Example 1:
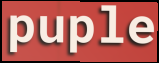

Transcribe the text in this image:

puple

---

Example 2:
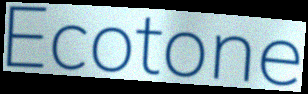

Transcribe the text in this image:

Ecotone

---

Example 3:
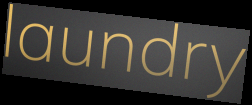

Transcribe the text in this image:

laundry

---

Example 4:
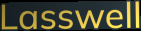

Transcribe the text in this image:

Lasswell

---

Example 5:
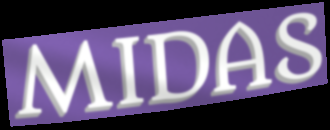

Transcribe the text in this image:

MIDAS